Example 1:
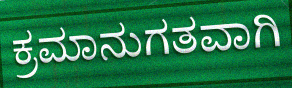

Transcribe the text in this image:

ಕ್ರಮಾನುಗತವಾಗಿ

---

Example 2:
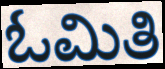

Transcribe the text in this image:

ಓಮಿತಿ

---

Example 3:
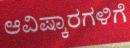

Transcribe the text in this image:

ಆವಿಷ್ಕಾರಗಳಿಗೆ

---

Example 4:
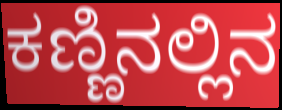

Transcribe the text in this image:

ಕಣ್ಣಿನಲ್ಲಿನ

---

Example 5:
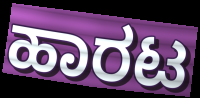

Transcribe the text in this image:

ಹಾರಟ